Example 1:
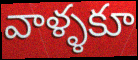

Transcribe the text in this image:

వాళ్ళకూ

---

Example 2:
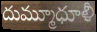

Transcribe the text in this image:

దుమ్మూధూళీ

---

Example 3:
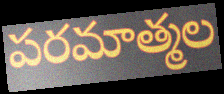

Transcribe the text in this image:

పరమాత్మల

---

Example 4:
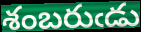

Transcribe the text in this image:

శంబరుఁడు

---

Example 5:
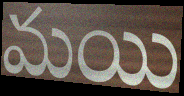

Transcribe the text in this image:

మయి